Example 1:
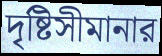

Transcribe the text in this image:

দৃষ্টিসীমানার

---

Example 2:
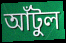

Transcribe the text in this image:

আঁটুল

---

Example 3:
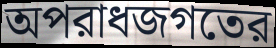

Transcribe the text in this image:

অপরাধজগতের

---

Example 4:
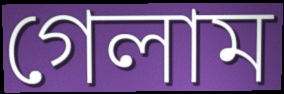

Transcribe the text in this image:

গেলাম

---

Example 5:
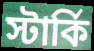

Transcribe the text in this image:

স্টার্কি